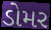
ડોમર